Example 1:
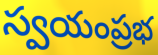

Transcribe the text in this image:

స్వయంప్రభ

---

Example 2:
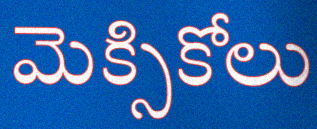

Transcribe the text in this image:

మెక్సికోలు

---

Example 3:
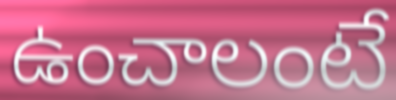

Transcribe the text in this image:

ఉంచాలంటే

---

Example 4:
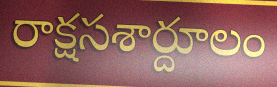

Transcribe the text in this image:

రాక్షసశార్దూలం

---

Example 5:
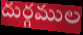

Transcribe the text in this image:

దుర్గముల